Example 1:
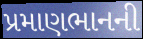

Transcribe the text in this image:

પ્રમાણભાનની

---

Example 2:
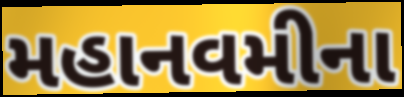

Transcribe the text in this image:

મહાનવમીના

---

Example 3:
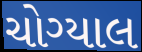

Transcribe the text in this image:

ચોગ્યાલ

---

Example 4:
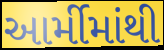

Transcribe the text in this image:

આર્મીમાંથી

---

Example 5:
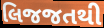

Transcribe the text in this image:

લિજજતથી